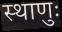
स्थाणुः